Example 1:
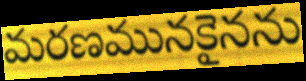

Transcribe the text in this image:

మరణమునకైనను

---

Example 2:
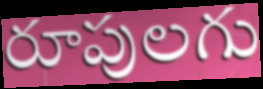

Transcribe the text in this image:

రూపులగు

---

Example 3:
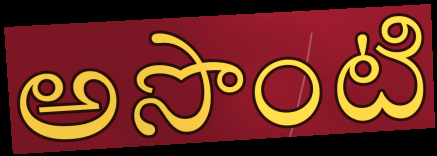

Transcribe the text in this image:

అసొంటి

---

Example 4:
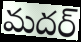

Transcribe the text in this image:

మదర్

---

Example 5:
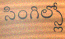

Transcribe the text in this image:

సింగిల్స్లో